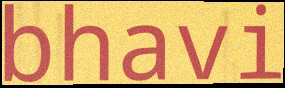
bhavi